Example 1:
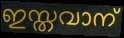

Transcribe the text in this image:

ഇസ്തവാന്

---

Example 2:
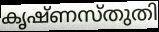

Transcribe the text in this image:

കൃഷ്ണസ്തുതി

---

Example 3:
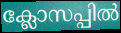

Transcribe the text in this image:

ക്ലോസപ്പിൽ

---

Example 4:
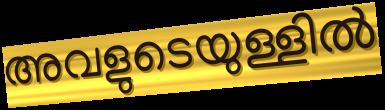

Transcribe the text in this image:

അവളുടെയുള്ളിൽ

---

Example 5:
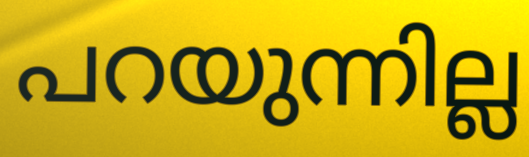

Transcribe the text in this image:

പറയുന്നില്ല